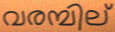
വരമ്പില്